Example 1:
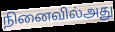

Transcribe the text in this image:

நினைவில்அது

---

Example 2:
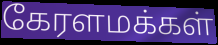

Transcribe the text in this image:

கேரளமக்கள்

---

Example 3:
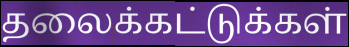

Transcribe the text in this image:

தலைக்கட்டுக்கள்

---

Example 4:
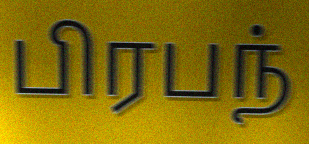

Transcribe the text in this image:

பிரபந்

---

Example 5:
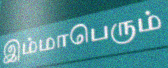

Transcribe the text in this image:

இம்மாபெரும்